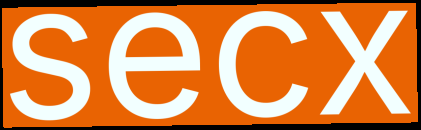
secx